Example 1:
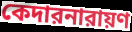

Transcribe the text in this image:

কেদারনারায়ণ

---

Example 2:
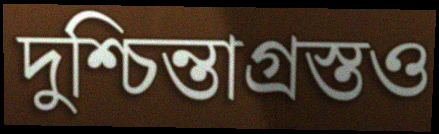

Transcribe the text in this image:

দুশ্চিন্তাগ্রস্তও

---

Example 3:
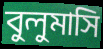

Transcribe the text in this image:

বুলুমাসি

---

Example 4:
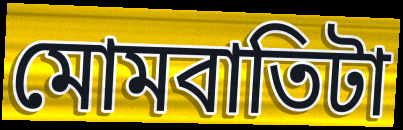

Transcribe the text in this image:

মোমবাতিটা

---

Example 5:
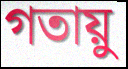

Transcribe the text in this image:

গতায়ু